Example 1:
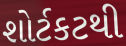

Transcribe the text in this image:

શોર્ટકટથી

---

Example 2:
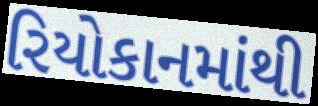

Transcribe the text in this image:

રિયોકાનમાંથી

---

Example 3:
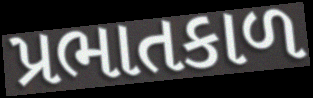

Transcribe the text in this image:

પ્રભાતકાળ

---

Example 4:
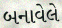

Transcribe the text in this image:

બનાવેલે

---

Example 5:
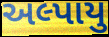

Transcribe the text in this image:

અલ્પાયુ